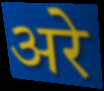
अरे